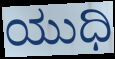
ಯುಧಿ